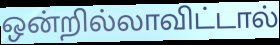
ஒன்றில்லாவிட்டால்